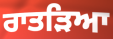
ਰਾਤੜਿਆ